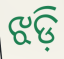
ଝଡ଼ି